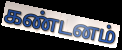
கண்டனம்